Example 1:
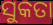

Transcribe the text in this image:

ସୁକତା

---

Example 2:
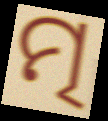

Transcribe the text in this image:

ତ୍ମ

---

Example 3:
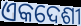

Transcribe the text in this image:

ଏକଦେଶୀ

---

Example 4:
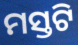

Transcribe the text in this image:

ମସ୍ତଟି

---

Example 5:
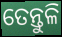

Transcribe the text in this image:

ତେନ୍ତୁଳି